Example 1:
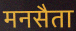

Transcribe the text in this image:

मनसैता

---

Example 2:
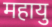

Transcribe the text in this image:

महायु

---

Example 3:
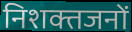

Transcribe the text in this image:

निशक्तजनों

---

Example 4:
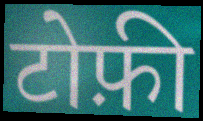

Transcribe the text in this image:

टोफ़ी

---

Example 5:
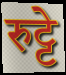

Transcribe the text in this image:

रुट्टे